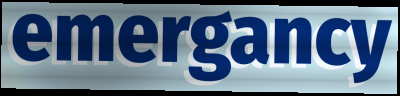
emergancy